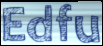
Edfu